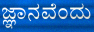
ಜ್ಞಾನವೆಂದು